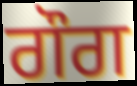
ਗੌਗ